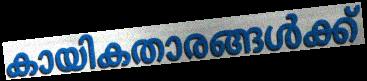
കായികതാരങ്ങൾക്ക്